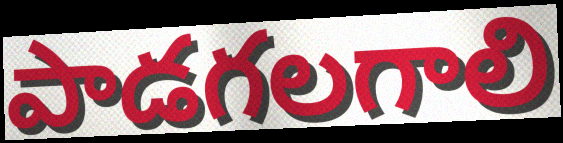
పాడగలగాలి